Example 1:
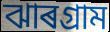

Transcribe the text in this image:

ঝাৰগ্ৰাম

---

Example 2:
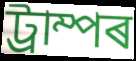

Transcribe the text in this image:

ট্ৰাম্পৰ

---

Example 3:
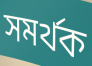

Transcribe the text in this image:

সমৰ্থক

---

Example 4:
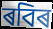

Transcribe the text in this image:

ৰবিৰ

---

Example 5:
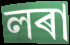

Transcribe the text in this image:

লৰা